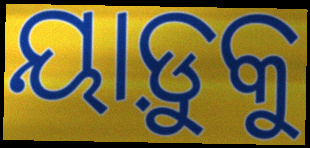
ୟାଡ଼ୁକୁ